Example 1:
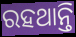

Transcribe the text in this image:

ରହଥାନ୍ତି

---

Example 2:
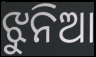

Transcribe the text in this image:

ଝୁନିଆ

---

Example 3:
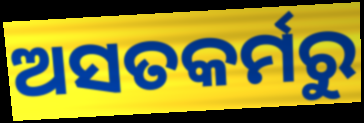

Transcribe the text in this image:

ଅସତକର୍ମରୁ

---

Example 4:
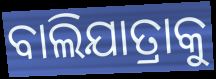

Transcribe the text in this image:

ବାଲିଯାତ୍ରାକୁ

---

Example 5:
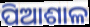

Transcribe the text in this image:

ପିଆଶାଳ